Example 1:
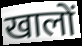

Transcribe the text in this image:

खालों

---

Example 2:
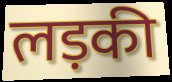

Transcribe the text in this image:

लड़की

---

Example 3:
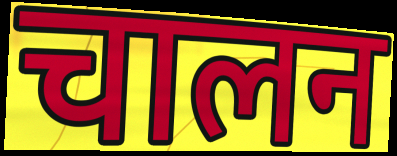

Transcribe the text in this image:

चालन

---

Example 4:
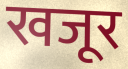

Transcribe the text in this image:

खजूर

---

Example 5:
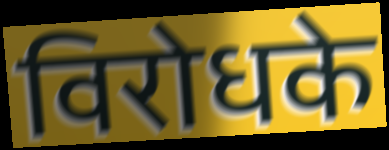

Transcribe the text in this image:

विरोधके